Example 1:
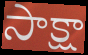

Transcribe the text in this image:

సాక్షా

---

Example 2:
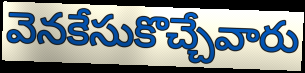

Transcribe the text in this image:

వెనకేసుకొచ్చేవారు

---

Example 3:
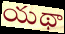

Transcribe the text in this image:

యథా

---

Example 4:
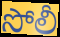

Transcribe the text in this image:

సోలీ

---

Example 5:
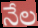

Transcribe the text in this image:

నేల